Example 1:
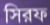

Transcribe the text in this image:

সিরফ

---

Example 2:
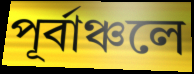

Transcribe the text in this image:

পূর্বাঞ্চলে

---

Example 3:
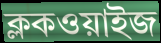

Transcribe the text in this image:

ক্লকওয়াইজ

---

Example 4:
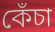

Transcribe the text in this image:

কেঁচা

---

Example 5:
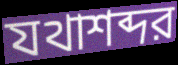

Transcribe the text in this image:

যথাশব্দর